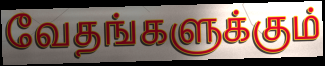
வேதங்களுக்கும்